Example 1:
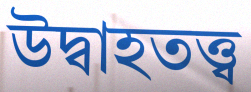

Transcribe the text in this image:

উদ্বাহতত্ত্ব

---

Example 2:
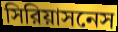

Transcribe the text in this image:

সিরিয়াসনেস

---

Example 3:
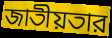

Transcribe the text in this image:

জাতীয়তার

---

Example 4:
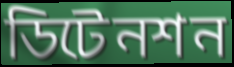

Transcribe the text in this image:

ডিটেনশন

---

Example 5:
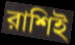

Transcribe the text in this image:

রাশিই